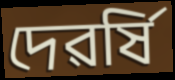
দেৱৰ্ষি